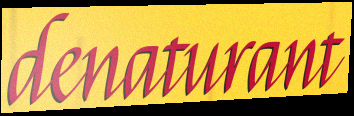
denaturant